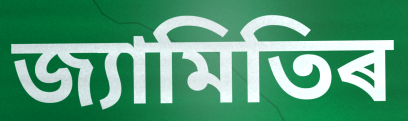
জ্যামিতিৰ